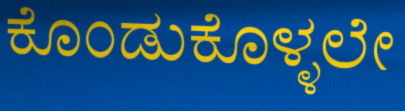
ಕೊಂಡುಕೊಳ್ಳಲೇ